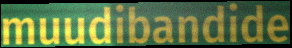
muudibandide